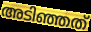
അടിഞ്ഞത്